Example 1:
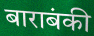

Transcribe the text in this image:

बाराबंकी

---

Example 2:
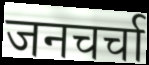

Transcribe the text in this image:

जनचर्चा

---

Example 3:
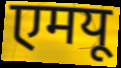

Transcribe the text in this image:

एमयू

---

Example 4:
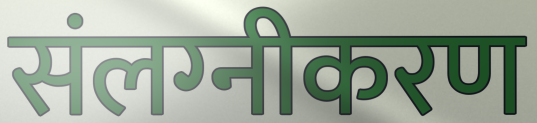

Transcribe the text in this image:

संलग्‍नीकरण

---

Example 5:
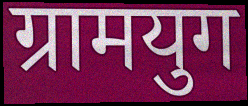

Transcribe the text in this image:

ग्रामयुग